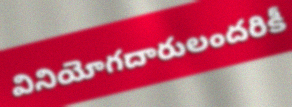
వినియోగదారులందరికీ